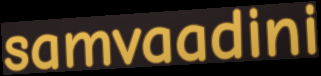
samvaadini